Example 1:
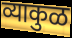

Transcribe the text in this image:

व्याकुळ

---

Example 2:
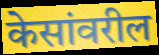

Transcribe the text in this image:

केसांवरील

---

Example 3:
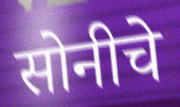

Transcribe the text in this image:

सोनीचे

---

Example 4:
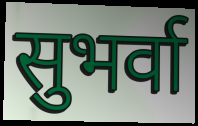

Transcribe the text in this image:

सुभर्वा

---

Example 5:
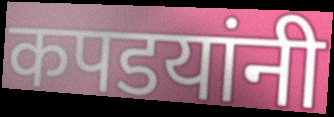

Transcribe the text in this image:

कपडयांनी